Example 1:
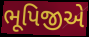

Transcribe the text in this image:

ભૂપિજીએ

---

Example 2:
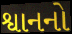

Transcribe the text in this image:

શ્વાનનો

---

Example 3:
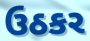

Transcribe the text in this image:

ઉઠકર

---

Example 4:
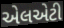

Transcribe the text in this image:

એલએટી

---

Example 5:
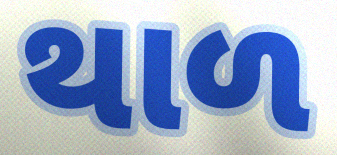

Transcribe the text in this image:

થાળ